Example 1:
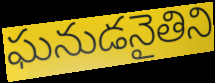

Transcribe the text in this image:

ఘనుడనైతిని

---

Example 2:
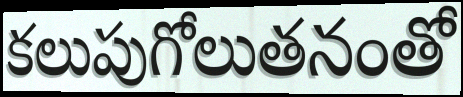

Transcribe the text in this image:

కలుపుగోలుతనంతో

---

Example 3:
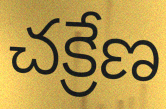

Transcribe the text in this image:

చక్రేణ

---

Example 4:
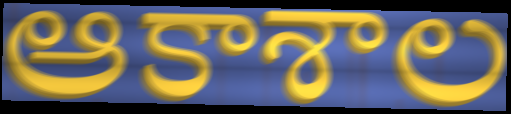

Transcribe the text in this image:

ఆకాశాల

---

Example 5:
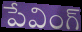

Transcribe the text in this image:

పేవింగ్